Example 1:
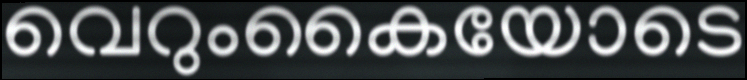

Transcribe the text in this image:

വെറുംകൈയോടെ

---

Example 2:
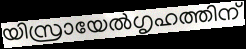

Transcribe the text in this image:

യിസ്രായേൽഗൃഹത്തിന്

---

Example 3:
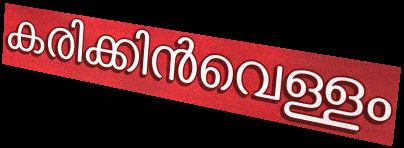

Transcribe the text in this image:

കരിക്കിൻവെള്ളം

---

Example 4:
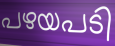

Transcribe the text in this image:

പഴയപടി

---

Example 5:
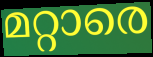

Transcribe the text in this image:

മറ്റാരെ